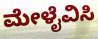
ಮೇಳೈವಿಸಿ